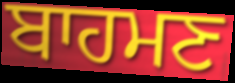
ਬਾਹਮਣ